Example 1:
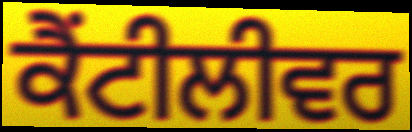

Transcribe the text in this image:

ਕੈਂਟੀਲੀਵਰ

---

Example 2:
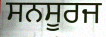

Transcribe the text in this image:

ਸਨਸੂਰਜ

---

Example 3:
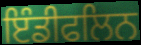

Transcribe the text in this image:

ਇੰਡੀਫਲਿਨ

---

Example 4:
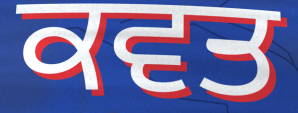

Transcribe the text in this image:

ਕਵਤ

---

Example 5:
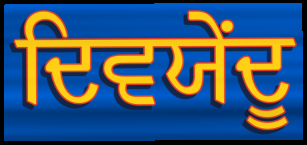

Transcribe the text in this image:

ਦਿਵਯੇਂਦੂ